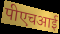
पीएचआई